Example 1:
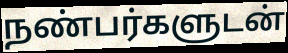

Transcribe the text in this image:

நண்பர்களுடன்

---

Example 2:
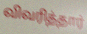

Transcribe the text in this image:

விவரித்தார்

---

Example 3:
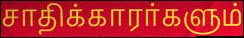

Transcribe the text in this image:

சாதிக்காரர்களும்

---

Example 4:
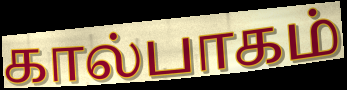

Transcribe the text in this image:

கால்பாகம்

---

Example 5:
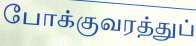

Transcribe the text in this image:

போக்குவரத்துப்